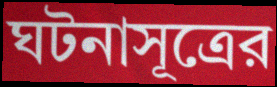
ঘটনাসূত্রের